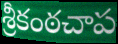
శ్రీకంఠచాప